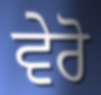
ਵੇਰੋ